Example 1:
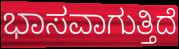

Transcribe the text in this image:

ಭಾಸವಾಗುತ್ತಿದೆ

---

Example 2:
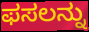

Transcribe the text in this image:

ಫಸಲನ್ನು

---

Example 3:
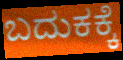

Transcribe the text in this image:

ಬದುಕಕ್ಕೆ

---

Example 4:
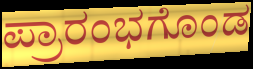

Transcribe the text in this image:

ಪ್ರಾರಂಭಗೊಂಡ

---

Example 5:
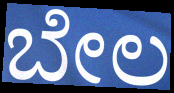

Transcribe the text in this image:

ಬೇಲ